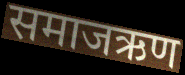
समाजऋण